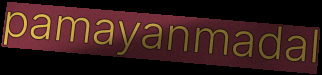
pamayanmadal